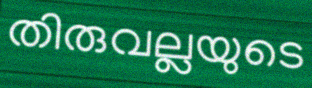
തിരുവല്ലയുടെ